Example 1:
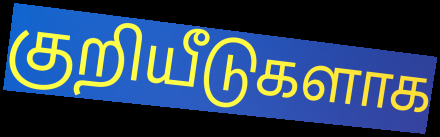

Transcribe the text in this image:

குறியீடுகளாக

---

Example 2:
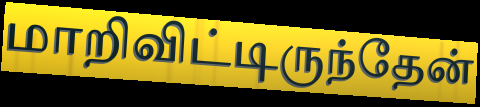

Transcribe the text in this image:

மாறிவிட்டிருந்தேன்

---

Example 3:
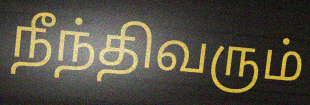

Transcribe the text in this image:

நீந்திவரும்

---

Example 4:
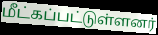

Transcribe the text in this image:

மீட்கப்பட்டுள்ளனர்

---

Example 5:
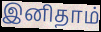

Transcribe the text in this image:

இனிதாம்